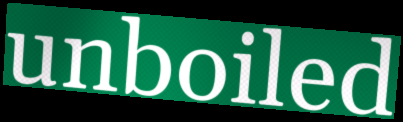
unboiled